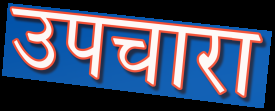
उपचारा